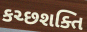
કચ્છશક્તિ